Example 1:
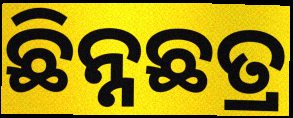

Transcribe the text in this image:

ଛିନ୍ନଛତ୍ର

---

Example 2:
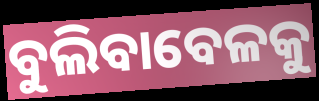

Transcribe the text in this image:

ବୁଲିବାବେଳକୁ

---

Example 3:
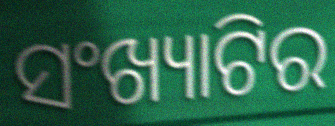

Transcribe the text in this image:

ସଂଖ୍ୟାଟିର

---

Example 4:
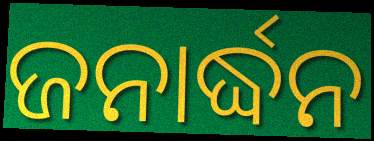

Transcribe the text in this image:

ଜନାର୍ଦ୍ଧନ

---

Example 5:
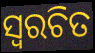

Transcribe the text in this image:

ସ୍ଵରଚିତ